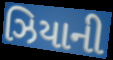
ઝિયાની